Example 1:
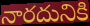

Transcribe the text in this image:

నారదునికి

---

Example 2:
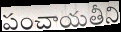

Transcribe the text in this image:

పంచాయతీని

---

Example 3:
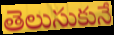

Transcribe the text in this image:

తెలుసుకునే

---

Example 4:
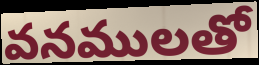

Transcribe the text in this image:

వనములతో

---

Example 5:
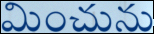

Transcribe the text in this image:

మించును